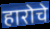
हारोचे